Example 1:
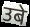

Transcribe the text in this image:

उबे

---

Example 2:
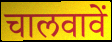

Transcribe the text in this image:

चालवावें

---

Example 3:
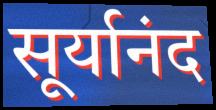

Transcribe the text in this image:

सूर्यानंद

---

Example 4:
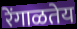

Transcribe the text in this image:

रेंगाळतेय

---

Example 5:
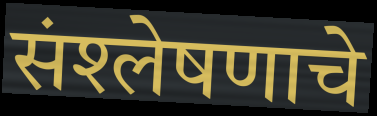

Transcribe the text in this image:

संश्लेषणाचे